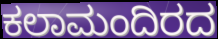
ಕಲಾಮಂದಿರದ